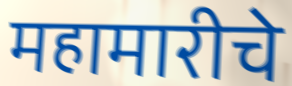
महामारीचे